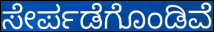
ಸೇರ್ಪಡೆಗೊಂಡಿವೆ